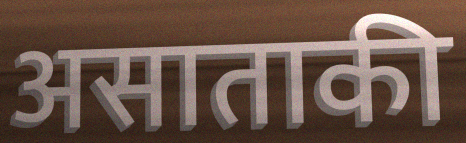
असाताकी